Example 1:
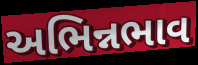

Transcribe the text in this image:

અભિન્નભાવ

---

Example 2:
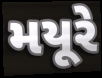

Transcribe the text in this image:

મયૂરે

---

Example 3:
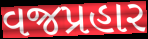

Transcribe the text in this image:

વજ્રપ્રહાર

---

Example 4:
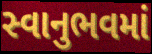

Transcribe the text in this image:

સ્વાનુભવમાં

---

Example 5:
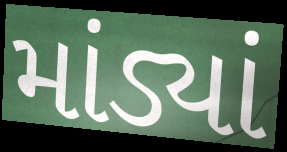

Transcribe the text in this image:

માંડ્યાં